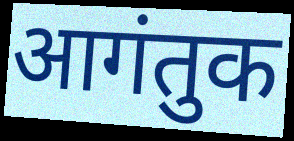
आगंतुक